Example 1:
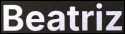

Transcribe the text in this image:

Beatriz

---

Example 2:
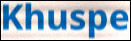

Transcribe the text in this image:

Khuspe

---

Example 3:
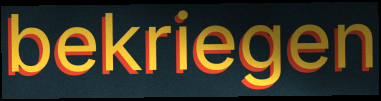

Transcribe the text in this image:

bekriegen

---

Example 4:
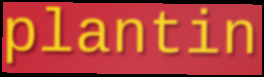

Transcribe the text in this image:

plantin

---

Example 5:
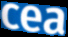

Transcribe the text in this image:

cea